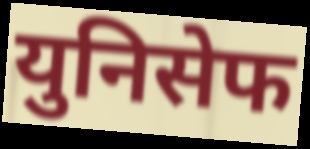
युनिसेफ